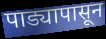
पाड्यापासून